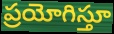
ప్రయోగిస్తూ